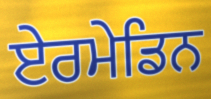
ਏਰਮੇਡਿਨ